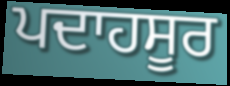
ਪਦਾਹਸੂਰ